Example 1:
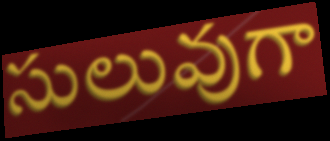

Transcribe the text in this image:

సులువుగా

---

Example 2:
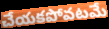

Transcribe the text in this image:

చేయకపోవటమే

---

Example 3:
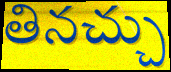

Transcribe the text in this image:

తినచ్చు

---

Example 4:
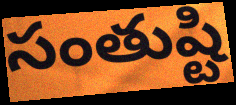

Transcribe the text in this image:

సంతుష్టి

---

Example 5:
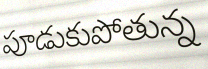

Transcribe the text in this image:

పూడుకుపోతున్న